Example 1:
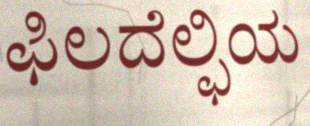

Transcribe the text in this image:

ಫಿಲದೆಲ್ಫಿಯ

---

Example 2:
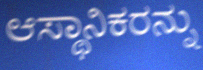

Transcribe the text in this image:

ಆಸ್ಥಾನಿಕರನ್ನು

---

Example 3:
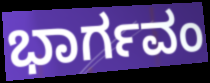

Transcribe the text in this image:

ಭಾರ್ಗವಂ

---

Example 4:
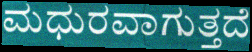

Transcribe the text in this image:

ಮಧುರವಾಗುತ್ತದೆ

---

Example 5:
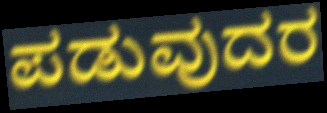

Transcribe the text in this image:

ಪಡುವುದರ